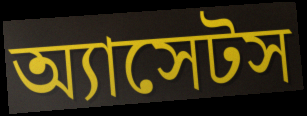
অ্যাসেটস